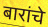
बारांचे